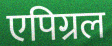
एपिग्रल